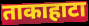
ताकाहाटा